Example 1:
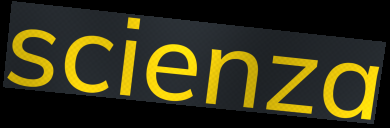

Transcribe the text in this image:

scienza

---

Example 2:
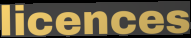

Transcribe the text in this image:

licences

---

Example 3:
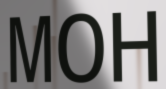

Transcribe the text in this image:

MOH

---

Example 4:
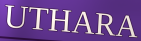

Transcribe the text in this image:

UTHARA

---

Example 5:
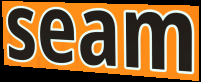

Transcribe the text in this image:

seam